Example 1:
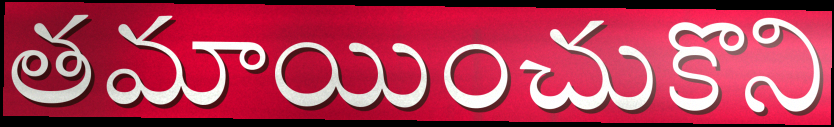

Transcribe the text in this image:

తమాయించుకొని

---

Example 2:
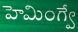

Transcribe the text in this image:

హెమింగ్వే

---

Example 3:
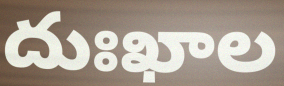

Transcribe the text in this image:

దుఃఖాల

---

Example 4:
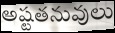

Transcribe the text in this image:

అష్టతనువులు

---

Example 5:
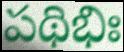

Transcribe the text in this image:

పథిభిః